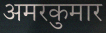
अमरकुमार